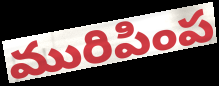
మురిపింప